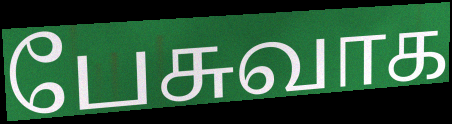
பேசுவாக